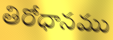
తిరోధానము